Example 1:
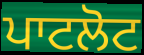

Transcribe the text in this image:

ਪਾਟਲੋਟ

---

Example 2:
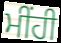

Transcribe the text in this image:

ਮੀਂਹੀ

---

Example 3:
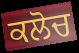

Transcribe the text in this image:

ਕਲੋਚ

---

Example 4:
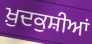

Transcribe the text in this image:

ਖ਼ੁਦਕੁਸ਼ੀਆਂ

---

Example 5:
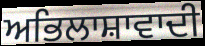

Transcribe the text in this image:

ਅਭਿਲਾਸ਼ਾਵਾਦੀ